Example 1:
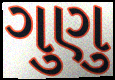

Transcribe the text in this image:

ગુણુ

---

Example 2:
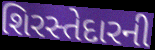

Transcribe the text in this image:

શિરસ્તેદારની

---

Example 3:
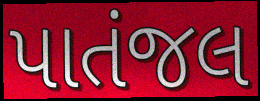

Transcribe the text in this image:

પાતંજલ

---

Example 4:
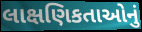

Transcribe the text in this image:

લાક્ષણિકતાઓનું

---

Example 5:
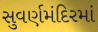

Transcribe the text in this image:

સુવર્ણમંદિરમાં